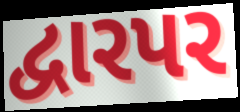
દ્વારપર